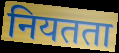
नियतता